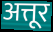
अत्तूर